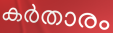
കർതാരം